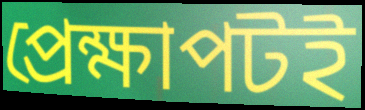
প্রেক্ষাপটই